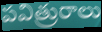
పవిత్రురాలు